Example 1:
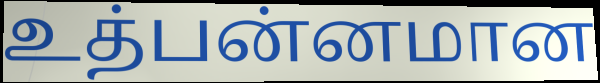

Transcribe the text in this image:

உத்பன்னமான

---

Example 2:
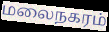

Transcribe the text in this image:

மலைநகரம்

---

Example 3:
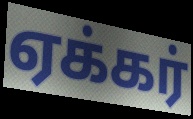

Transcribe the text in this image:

ஏக்கர்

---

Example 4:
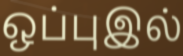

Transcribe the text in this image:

ஒப்புஇல்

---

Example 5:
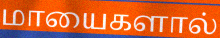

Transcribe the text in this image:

மாயைகளால்